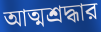
আত্মশ্রদ্ধার